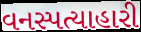
વનસ્પત્યાહારી